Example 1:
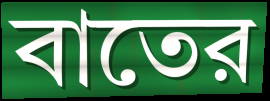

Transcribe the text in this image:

বাতের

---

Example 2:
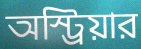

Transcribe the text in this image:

অস্ট্রিয়ার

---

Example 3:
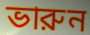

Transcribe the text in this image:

ভারুন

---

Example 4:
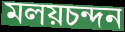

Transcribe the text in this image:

মলয়চন্দন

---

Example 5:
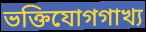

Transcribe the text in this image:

ভক্তিযোগগাখ্য